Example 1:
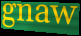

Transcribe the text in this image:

gnaw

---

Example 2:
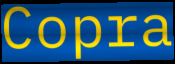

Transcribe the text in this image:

Copra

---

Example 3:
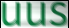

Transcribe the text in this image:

uus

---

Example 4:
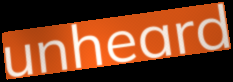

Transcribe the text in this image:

unheard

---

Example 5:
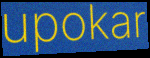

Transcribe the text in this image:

upokar